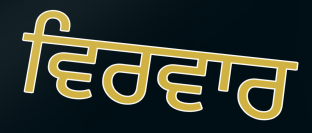
ਵਿਰਵਾਰ